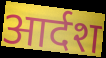
आर्दश